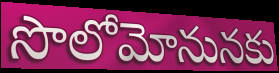
సొలోమోనునకు